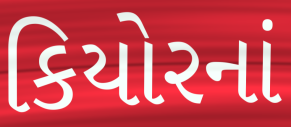
કિયોરનાં